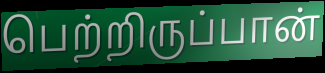
பெற்றிருப்பான்